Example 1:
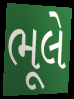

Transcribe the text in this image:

ભૂલે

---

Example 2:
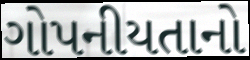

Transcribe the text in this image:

ગોપનીયતાનો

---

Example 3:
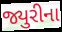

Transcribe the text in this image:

જ્યુરીના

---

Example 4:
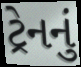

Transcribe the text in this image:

ટ્રેનનું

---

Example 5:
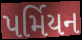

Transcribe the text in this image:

પર્મિયન